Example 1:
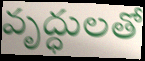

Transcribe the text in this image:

వృద్ధులతో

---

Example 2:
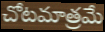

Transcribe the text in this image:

చోటమాత్రమే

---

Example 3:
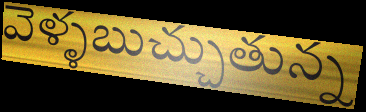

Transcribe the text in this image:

వెళ్ళబుచ్చుతున్న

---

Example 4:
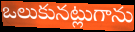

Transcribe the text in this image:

ఒలుకునట్లుగాను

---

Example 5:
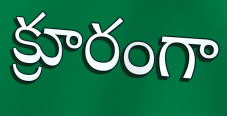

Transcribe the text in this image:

క్రూరంగా